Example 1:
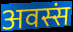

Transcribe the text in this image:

अवस्सं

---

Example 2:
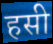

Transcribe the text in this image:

हसी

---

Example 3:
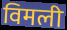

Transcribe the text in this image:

विमली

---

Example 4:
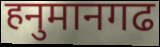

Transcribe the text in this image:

हनुमानगढ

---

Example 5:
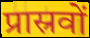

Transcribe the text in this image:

प्रास्रवों